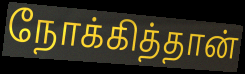
நோக்கித்தான்